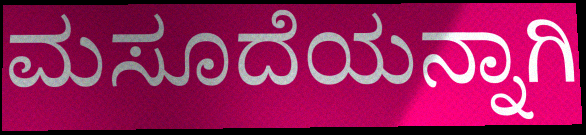
ಮಸೂದೆಯನ್ನಾಗಿ